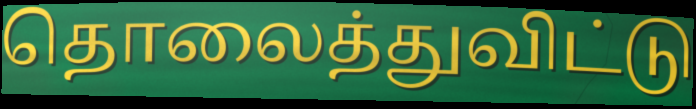
தொலைத்துவிட்டு